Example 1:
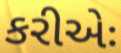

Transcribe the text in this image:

કરીએઃ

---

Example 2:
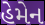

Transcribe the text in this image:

હેમેન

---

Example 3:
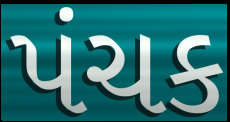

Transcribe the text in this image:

પંચક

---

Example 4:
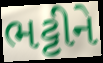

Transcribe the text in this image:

ભટ્ટીને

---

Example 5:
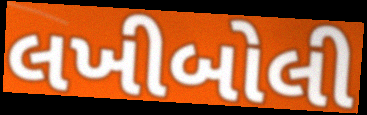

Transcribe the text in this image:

લખીબોલી